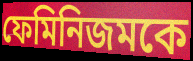
ফেমিনিজমকে